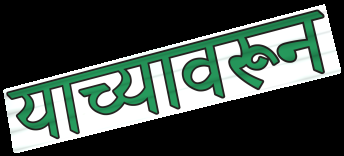
याच्यावरून